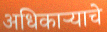
अधिकाऱ्याचे